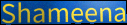
Shameena